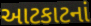
આટકાટનાં